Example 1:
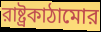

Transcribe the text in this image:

রাষ্ট্রকাঠামোর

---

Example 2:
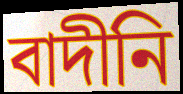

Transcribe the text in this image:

বাদীনি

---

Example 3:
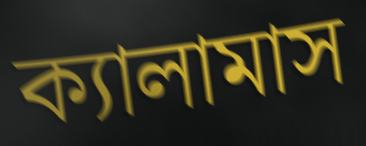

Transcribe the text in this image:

ক্যালামাস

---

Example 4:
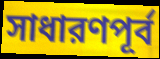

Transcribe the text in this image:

সাধারণপূর্ব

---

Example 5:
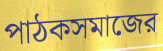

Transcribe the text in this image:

পাঠকসমাজের